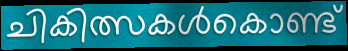
ചികിത്സകൾകൊണ്ട്